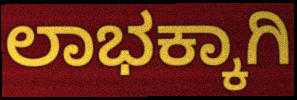
ಲಾಭಕ್ಕಾಗಿ